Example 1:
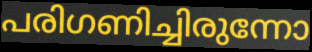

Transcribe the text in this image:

പരിഗണിച്ചിരുന്നോ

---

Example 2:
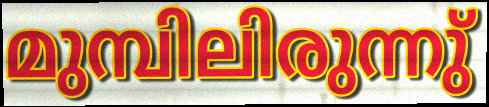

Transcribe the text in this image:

മുമ്പിലിരുന്നു്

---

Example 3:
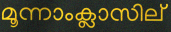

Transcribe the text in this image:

മൂന്നാംക്ലാസില്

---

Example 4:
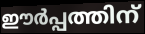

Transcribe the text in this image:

ഈർപ്പത്തിന്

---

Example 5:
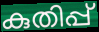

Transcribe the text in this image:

കുതിപ്പ്